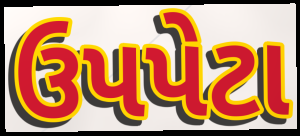
ઉપપેટા